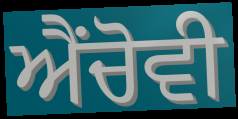
ਐਂਚੋਵੀ